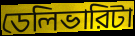
ডেলিভারিটা